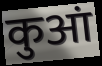
कुआं